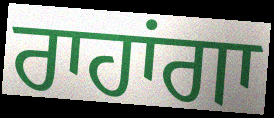
ਰਾਹਾਂਗਾ